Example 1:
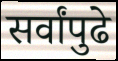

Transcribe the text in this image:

सर्वांपुढे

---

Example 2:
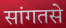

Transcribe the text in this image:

सांगतसे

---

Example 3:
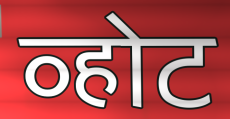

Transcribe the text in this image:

व्होट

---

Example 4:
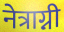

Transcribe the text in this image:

नेत्राग्नी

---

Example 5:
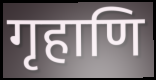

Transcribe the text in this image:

गृहाणि